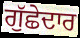
ਗੁੱਛੇਦਾਰ